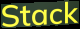
Stack